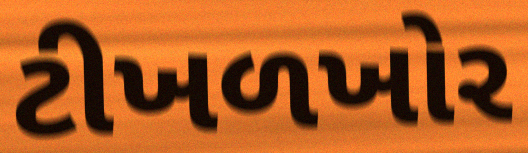
ટીખળખોર